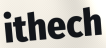
ithech